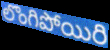
లొంగిపోయిరి